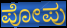
ಪೋಪು